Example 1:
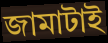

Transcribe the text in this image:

জামাটাই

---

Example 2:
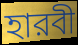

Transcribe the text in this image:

হারবী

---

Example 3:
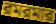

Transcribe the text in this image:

রমরমার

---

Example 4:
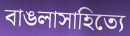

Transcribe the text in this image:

বাঙলাসাহিত্যে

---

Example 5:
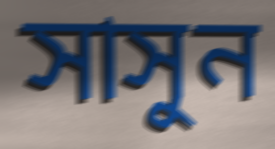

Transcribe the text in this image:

সাসুন